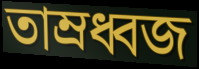
তাম্রধ্বজ